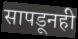
सापडूनही